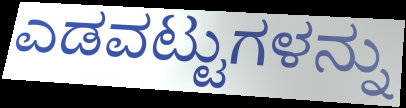
ಎಡವಟ್ಟುಗಳನ್ನು